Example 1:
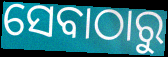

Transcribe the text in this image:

ସେବାଠାରୁ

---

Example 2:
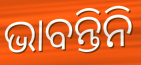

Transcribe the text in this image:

ଭାବନ୍ତିନି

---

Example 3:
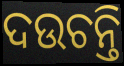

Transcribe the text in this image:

ଦଉଚନ୍ତି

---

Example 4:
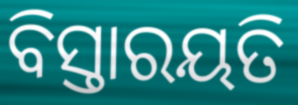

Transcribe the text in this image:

ବିସ୍ତାରୟତି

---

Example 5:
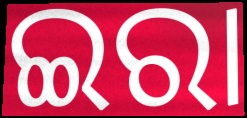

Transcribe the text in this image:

ଇରା